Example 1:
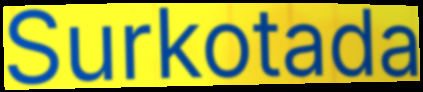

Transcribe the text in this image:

Surkotada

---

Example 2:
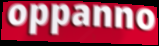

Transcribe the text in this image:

oppanno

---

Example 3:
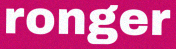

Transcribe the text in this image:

ronger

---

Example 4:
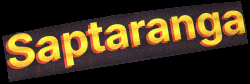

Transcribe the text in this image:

Saptaranga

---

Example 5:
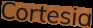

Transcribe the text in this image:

Cortesia